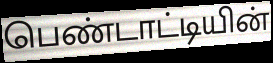
பெண்டாட்டியின்